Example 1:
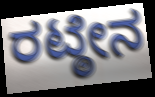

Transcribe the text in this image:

ರಟ್ಠೇನ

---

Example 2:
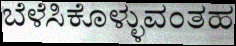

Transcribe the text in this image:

ಬೆಳೆಸಿಕೊಳ್ಳುವಂತಹ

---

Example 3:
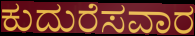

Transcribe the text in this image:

ಕುದುರೆಸವಾರ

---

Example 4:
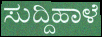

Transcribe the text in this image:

ಸುದ್ದಿಹಾಳೆ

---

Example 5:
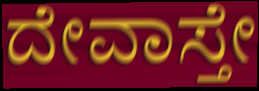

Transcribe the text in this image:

ದೇವಾಸ್ತೇ